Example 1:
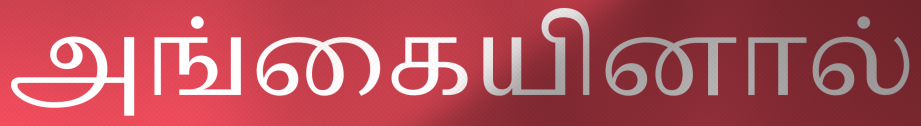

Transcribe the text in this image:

அங்கையினால்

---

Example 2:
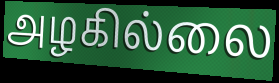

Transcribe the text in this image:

அழகில்லை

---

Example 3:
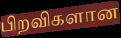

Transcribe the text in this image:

பிறவிகளான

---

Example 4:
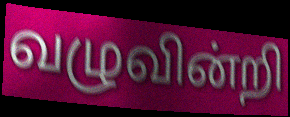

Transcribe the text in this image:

வழுவின்றி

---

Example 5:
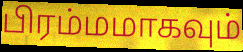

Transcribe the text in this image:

பிரம்மமாகவும்